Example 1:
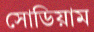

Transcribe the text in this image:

সোডিয়াম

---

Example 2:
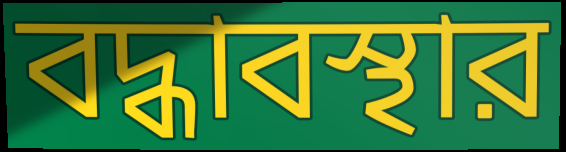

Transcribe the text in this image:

বদ্ধাবস্থার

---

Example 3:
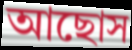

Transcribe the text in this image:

আছোস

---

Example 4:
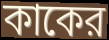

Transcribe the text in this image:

কাকের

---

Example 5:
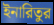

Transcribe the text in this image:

ইনারিতুর